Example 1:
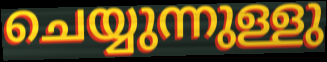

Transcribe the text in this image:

ചെയ്യുന്നുള്ളു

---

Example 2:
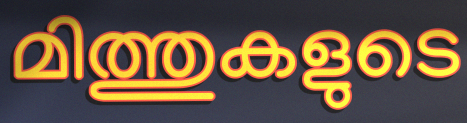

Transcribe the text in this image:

മിത്തുകളുടെ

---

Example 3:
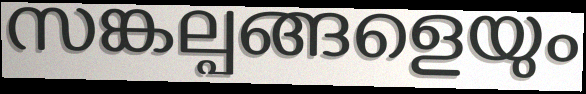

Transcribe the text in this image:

സങ്കല്പങ്ങളെയും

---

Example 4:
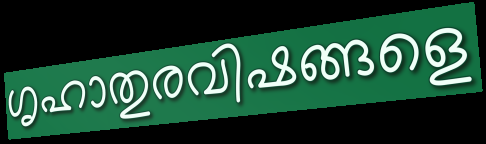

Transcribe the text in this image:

ഗൃഹാതുരവിഷങ്ങളെ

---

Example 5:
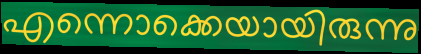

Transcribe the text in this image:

എന്നൊക്കെയായിരുന്നു